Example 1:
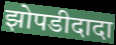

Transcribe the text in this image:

झोपडीदादा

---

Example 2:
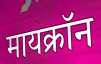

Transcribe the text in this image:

मायक्रॉन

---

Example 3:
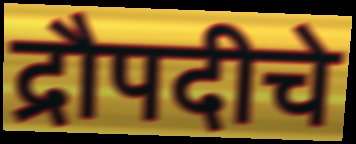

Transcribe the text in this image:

द्रौपदीचे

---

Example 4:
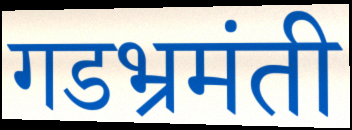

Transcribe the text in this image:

गडभ्रमंती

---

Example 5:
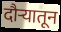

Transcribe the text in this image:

दौर्‍यातून